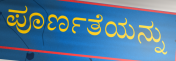
ಪೂರ್ಣತೆಯನ್ನು